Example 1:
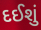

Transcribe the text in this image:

દઈશું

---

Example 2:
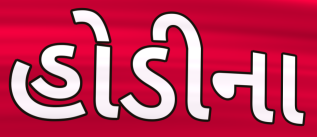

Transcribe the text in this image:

હોડીના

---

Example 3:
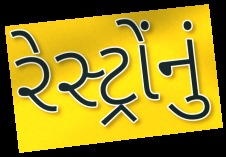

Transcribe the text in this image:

રેસ્ટ્રોંનું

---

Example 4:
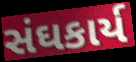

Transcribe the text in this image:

સંઘકાર્ય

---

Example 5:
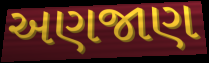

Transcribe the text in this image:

અણજાણ